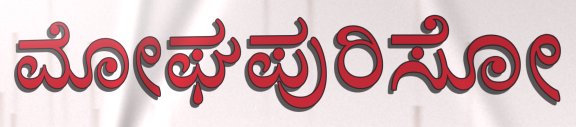
ಮೋಘಪುರಿಸೋ